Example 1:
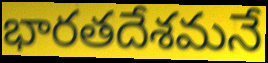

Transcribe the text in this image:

భారతదేశమనే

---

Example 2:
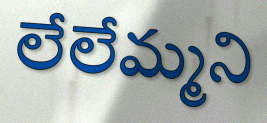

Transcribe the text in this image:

లేలేమ్మని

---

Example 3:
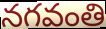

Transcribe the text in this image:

నగవంతి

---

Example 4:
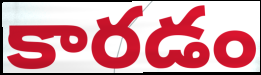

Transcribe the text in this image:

కారడం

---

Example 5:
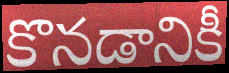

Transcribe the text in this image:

కొనడానికీ